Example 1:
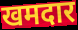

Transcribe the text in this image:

खमदार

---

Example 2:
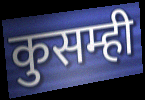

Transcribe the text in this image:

कुसम्ही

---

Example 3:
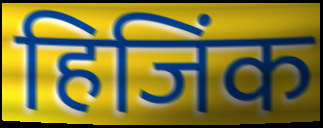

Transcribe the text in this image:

हिजिंक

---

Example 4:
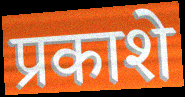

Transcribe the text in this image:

प्रकाशे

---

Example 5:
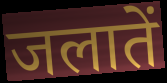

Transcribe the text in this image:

जलातें